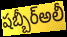
షబ్బీర్అలీ